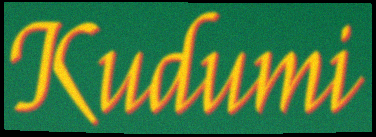
Kudumi